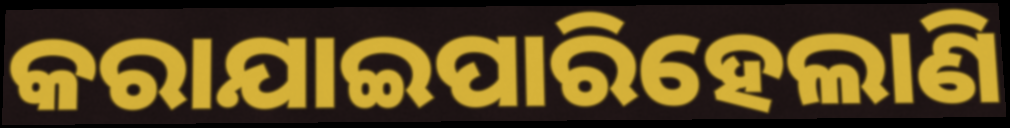
କରାଯାଇପାରିହେଲାଣି